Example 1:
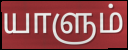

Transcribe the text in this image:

யாளும்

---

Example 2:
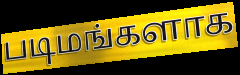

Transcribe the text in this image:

படிமங்களாக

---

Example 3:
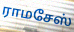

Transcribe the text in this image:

ராமசேஸ்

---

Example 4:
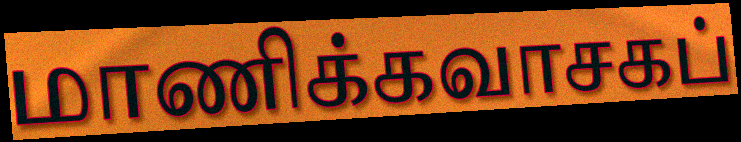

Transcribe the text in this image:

மாணிக்கவாசகப்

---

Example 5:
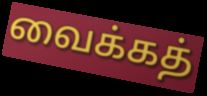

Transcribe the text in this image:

வைக்கத்